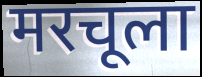
मरचूला